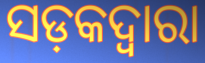
ସଡ଼କଦ୍ୱାରା